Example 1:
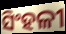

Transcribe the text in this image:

ସିଂହଳୀ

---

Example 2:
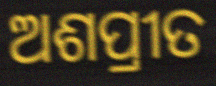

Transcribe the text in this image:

ଅଶପ୍ରୀତ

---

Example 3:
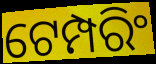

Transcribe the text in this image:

ଟେମ୍ପରିଂ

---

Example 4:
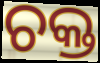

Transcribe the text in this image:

ଚକ୍ତ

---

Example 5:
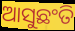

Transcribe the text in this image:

ଆସୁଛଂତି